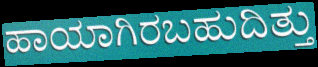
ಹಾಯಾಗಿರಬಹುದಿತ್ತು